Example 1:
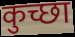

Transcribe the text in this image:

कुच्छा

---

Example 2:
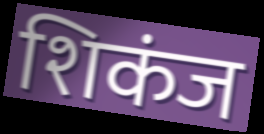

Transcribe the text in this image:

शिकंज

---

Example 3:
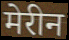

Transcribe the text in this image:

मेरीन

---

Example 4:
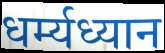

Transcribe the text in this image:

धर्म्यध्यान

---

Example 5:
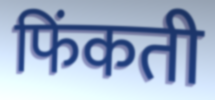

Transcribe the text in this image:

फिंकती